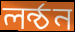
লন্ঠন